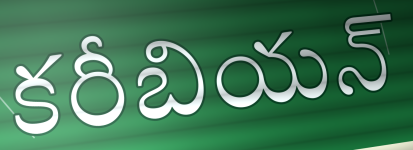
కరీబియన్